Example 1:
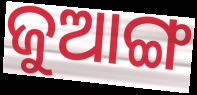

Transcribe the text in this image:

ଜୁଆଙ୍ଗ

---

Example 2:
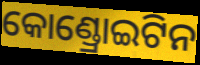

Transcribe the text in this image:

କୋଣ୍ଡ୍ରୋଇଟିନ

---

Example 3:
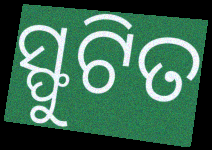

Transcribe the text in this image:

ସ୍ଫୁଟିତ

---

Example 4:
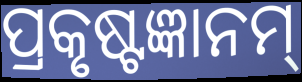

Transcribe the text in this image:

ପ୍ରକୃଷ୍ଟଜ୍ଞାନମ୍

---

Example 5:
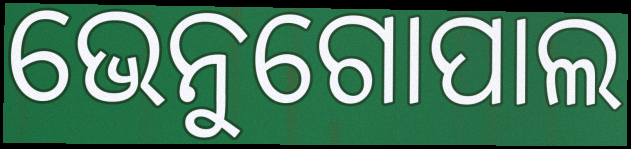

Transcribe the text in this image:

ଭେନୁଗୋପାଲ